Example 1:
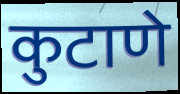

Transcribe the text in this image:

कुटाणे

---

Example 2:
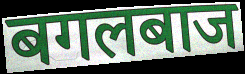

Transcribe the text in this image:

बगलबाज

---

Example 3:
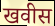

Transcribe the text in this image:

खवीस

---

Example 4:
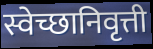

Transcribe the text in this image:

स्वेच्छानिवृत्ती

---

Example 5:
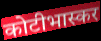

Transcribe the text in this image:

कोटीभास्कर